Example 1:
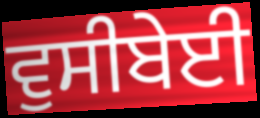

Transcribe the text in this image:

ਵੁਸੀਬੇਈ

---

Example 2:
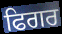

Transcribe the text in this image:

ਫਿਗਰ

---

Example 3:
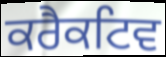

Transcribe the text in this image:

ਕਰੈਕਟਿਵ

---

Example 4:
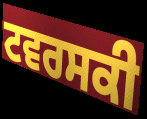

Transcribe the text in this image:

ਟਵਰਸਕੀ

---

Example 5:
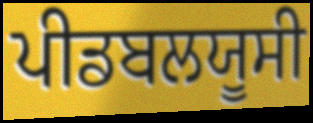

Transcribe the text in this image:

ਪੀਡਬਲਯੂਸੀ